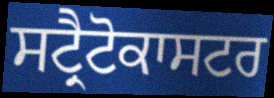
ਸਟ੍ਰੈਟੋਕਾਸਟਰ